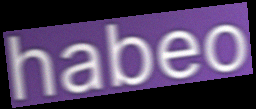
habeo